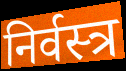
निर्वस्त्र